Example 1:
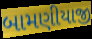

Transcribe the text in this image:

બામણીયાજી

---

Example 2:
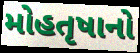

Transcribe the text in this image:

મોહતૃષાનો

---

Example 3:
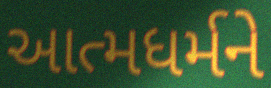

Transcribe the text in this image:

આત્મધર્મને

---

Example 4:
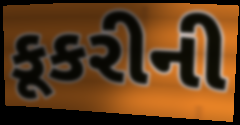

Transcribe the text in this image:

કૂકરીની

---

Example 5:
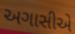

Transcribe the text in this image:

અગાસીએ